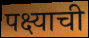
पक्ष्याची